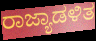
ರಾಜ್ಯಾಡಳಿತ